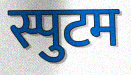
स्पुटम